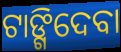
ଟାଙ୍ଗିଦେବା